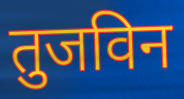
तुजविन